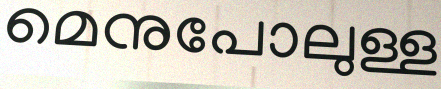
മെനുപോലുള്ള